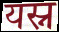
यस्न